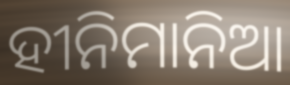
ହୀନିମାନିଆ